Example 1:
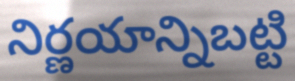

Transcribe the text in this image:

నిర్ణయాన్నిబట్టి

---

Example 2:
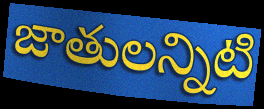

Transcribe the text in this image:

జాతులన్నిటి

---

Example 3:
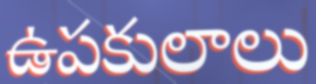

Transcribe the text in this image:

ఉపకులాలు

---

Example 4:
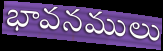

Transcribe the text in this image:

భావనములు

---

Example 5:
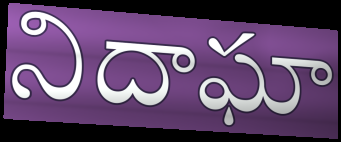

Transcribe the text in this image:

నిదాఘా